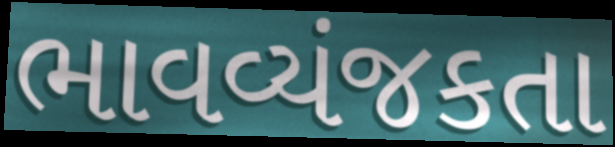
ભાવવ્યંજકતા